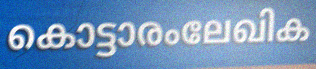
കൊട്ടാരംലേഖിക